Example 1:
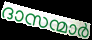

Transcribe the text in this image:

ദാസന്മാർ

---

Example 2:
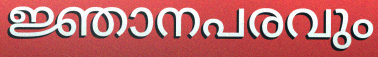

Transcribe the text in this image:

ജ്ഞാനപരവും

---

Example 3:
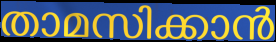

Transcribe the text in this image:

താമസിക്കാൻ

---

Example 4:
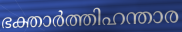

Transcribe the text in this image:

ഭക്താർത്തിഹന്താര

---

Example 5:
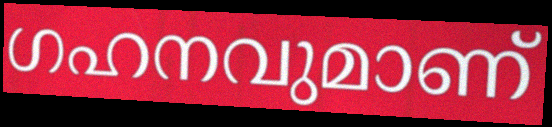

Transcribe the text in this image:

ഗഹനവുമാണ്